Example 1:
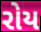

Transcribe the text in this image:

રોય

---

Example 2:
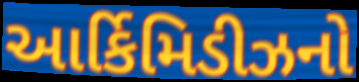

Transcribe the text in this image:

આર્કિમિડીઝનો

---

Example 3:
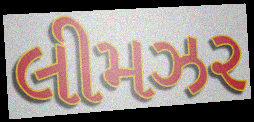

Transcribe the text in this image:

લીમઝર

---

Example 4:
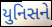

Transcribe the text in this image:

યુનિસને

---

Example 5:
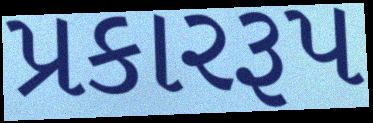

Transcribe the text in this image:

પ્રકારરૂપ